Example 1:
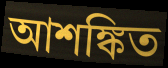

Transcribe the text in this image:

আশঙ্কিত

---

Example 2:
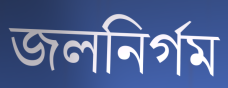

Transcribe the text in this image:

জলনির্গম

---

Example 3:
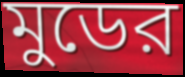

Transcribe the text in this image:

মুডের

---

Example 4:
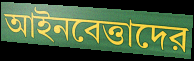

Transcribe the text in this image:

আইনবেত্তাদের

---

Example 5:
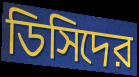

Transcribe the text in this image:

ডিসিদের